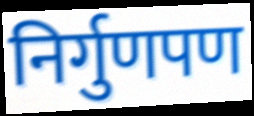
निर्गुणपण